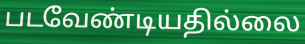
படவேண்டியதில்லை